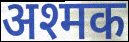
अश्मक